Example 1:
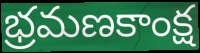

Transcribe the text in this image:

భ్రమణకాంక్ష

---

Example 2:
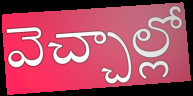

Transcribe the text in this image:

వెచ్చాల్లో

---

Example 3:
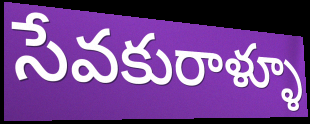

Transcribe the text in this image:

సేవకురాళ్ళూ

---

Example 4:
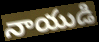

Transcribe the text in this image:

నాయుడి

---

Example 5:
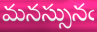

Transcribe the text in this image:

మనస్సునఁ